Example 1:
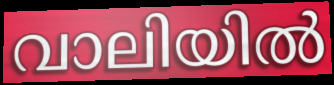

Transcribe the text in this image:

വാലിയിൽ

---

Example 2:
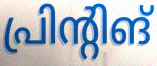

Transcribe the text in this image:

പ്രിന്റിങ്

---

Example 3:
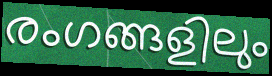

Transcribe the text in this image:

രംഗങ്ങളിലും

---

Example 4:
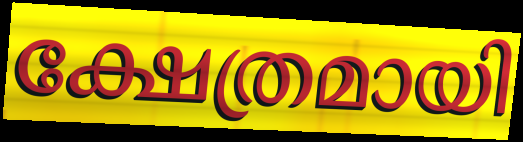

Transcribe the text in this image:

ക്ഷേത്രമായി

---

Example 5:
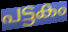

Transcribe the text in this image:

പട്ടകം